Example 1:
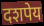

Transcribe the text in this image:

दशपेय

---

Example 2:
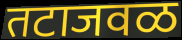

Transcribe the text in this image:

तटाजवळ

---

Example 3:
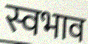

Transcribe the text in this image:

स्वभाव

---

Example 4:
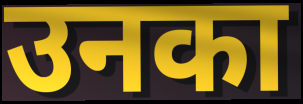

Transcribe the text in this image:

उनका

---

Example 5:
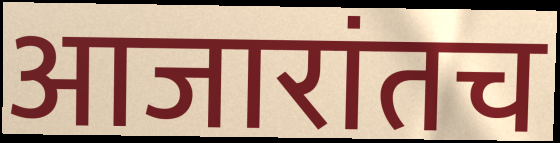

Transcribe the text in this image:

आजारांतच